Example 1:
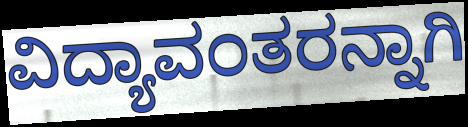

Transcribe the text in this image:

ವಿದ್ಯಾವಂತರನ್ನಾಗಿ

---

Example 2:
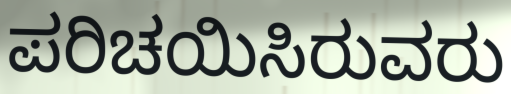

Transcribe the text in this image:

ಪರಿಚಯಿಸಿರುವರು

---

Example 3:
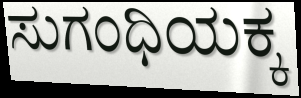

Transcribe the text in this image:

ಸುಗಂಧಿಯಕ್ಕ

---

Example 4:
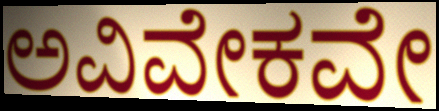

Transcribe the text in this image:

ಅವಿವೇಕವೇ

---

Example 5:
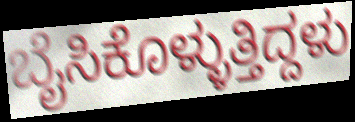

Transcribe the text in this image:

ಬೈಸಿಕೊಳ್ಳುತ್ತಿದ್ದಳು